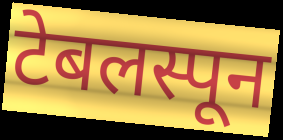
टेबलस्पून